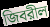
জিবরীল